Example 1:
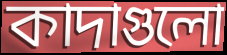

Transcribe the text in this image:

কাদাগুলো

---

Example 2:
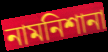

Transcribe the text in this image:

নামনিশানা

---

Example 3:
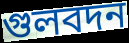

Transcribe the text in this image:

গুলবদন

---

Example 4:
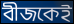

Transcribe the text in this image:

বীজকেই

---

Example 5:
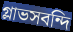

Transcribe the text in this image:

গ্লাভসবন্দি